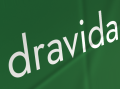
dravida